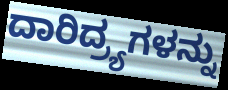
ದಾರಿದ್ರ್ಯಗಳನ್ನು